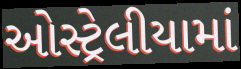
ઓસ્ટ્રેલીયામાં